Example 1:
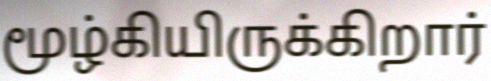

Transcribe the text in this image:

மூழ்கியிருக்கிறார்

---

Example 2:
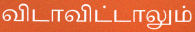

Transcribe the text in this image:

விடாவிட்டாலும்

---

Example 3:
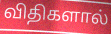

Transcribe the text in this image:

விதிகளால்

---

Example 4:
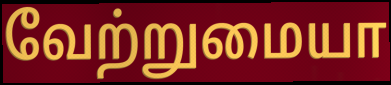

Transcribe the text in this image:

வேற்றுமையா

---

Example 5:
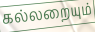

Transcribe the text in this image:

கல்லறையும்